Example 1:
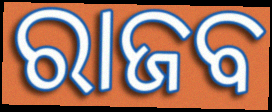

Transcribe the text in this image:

ରାଜବ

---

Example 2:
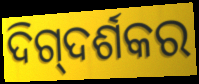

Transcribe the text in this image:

ଦିଗ୍‍ଦର୍ଶକର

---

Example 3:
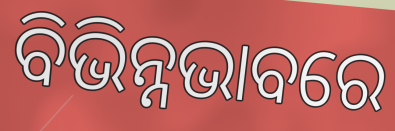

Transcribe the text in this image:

ବିଭିନ୍ନଭାବରେ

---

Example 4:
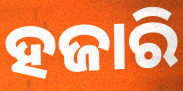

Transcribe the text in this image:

ହଜାରି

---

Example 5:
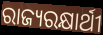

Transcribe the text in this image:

ରାଜ୍ୟରକ୍ଷାର୍ଥୀ